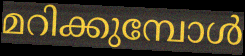
മറിക്കുമ്പോൾ